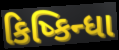
કિષ્કિન્ધા